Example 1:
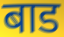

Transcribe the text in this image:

बाड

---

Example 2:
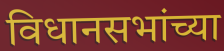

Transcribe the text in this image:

विधानसभांच्या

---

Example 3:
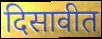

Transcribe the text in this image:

दिसावीत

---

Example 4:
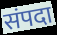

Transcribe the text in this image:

संपदा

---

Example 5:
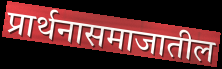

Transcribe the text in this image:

प्रार्थनासमाजातील